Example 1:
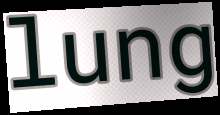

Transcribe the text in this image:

lung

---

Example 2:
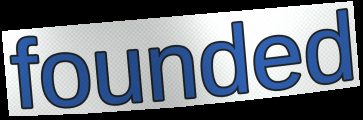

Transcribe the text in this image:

founded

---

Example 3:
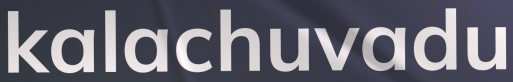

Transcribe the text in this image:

kalachuvadu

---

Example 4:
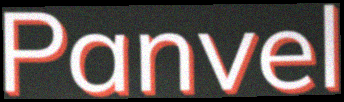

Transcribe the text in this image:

Panvel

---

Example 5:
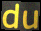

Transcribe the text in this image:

du